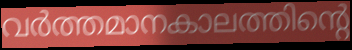
വർത്തമാനകാലത്തിന്റെ